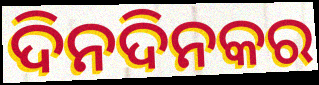
ଦିନଦିନକର